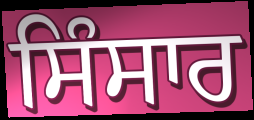
ਸਿੰਸਾਰ